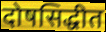
दोषसिद्धीत